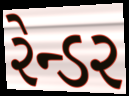
રેન્ડર